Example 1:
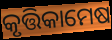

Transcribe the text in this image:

କୃତ୍ତିକାମେଷ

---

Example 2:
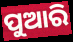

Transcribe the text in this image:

ପୁଆରି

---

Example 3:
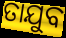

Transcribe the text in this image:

ତାଯୁବ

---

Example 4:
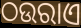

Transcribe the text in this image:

ଠଉରାଏ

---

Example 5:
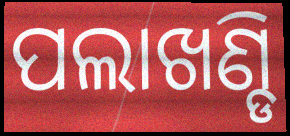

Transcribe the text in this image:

ପଲାଖଣ୍ଡି